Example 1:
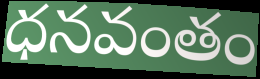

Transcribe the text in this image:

ధనవంతం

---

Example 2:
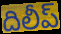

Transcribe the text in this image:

దిలీప్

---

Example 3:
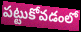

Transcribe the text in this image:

పట్టుకోవడంలో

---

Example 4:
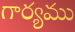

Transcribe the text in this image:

గార్యము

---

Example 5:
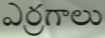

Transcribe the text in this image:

ఎర్రగాలు